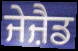
ਜੇਜ਼ੈਡ